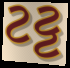
ટટ્ટ